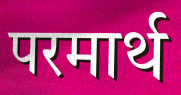
परमार्थ